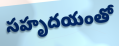
సహృదయంతో